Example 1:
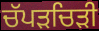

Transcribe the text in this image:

ਚੱਪੜਚਿੜੀ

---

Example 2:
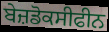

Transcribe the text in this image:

ਬੇਜ਼ਡੋਕਸੀਫੀਨ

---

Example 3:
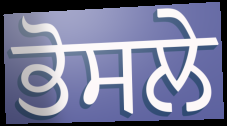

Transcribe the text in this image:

ਭੋਸਲੇ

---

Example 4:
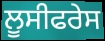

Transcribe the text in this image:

ਲੂਸੀਫਰੇਸ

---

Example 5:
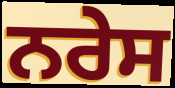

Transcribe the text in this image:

ਨਰੇਸ